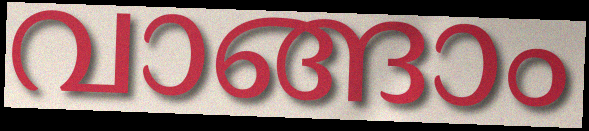
വാങ്ങാം